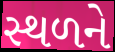
સ્‍થળને